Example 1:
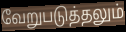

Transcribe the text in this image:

வேறுபடுத்தலும்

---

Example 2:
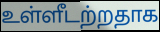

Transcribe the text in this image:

உள்ளீடற்றதாக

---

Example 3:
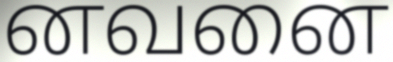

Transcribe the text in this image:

னவனை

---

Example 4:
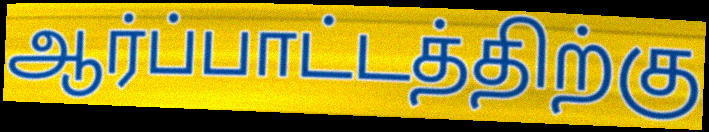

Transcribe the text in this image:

ஆர்ப்பாட்டத்திற்கு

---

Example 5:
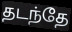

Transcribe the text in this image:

தடந்தே